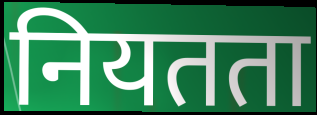
नियतता